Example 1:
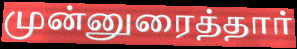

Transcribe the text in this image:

முன்னுரைத்தார்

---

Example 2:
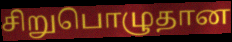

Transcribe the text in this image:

சிறுபொழுதான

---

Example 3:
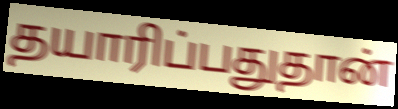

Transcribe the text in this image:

தயாரிப்பதுதான்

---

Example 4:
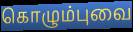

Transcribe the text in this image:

கொழும்புவை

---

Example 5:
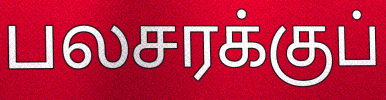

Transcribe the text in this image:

பலசரக்குப்